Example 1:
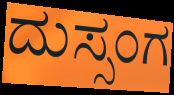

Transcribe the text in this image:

ದುಸ್ಸಂಗ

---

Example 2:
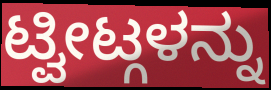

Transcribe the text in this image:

ಟ್ವೀಟ್ಗಳನ್ನು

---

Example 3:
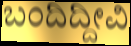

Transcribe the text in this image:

ಬಂದಿದ್ದೀವಿ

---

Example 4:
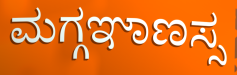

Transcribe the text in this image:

ಮಗ್ಗಞಾಣಸ್ಸ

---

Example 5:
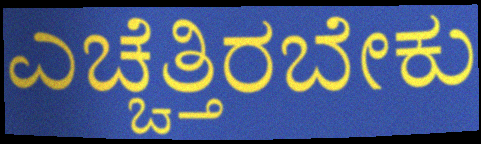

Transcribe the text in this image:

ಎಚ್ಚೆತ್ತಿರಬೇಕು